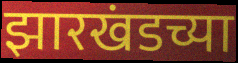
झारखंडच्या